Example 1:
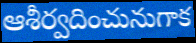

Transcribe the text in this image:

ఆశీర్వదించునుగాక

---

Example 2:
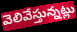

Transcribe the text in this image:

వెలివేస్తున్నట్లు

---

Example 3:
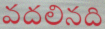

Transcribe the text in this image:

వదలినది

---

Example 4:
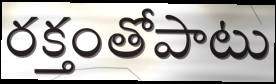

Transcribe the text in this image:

రక్తంతోపాటు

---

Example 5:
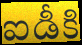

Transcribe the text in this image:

ఐడీకి